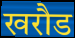
खरौड